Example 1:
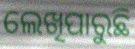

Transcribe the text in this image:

ଲେଖିପାରୁଛି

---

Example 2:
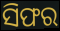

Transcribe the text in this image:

ସିଫର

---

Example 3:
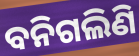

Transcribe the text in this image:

ବନିଗଲିଣି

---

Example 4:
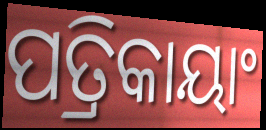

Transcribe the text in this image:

ପତ୍ରିକାୟାଂ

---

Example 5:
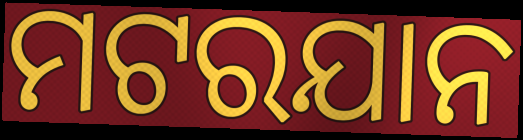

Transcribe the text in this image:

ମଟରଯାନ